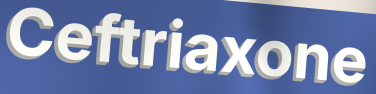
Ceftriaxone